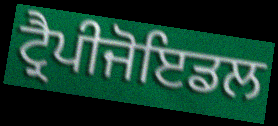
ਟ੍ਰੈਪੀਜੋਇਡਲ